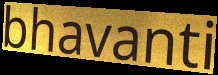
bhavanti